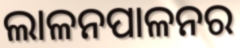
ଲାଳନପାଳନର